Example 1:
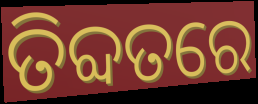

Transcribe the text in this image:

ତିବ୍ଦତରେ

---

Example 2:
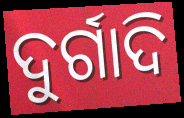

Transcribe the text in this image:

ଦୁର୍ଗାଦି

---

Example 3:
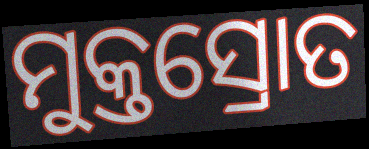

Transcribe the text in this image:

ମୁକ୍ତସ୍ରୋତ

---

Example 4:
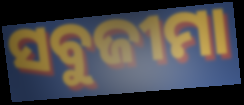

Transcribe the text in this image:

ସବୁଜୀମା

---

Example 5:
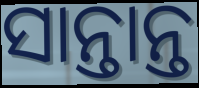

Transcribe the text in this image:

ସାନ୍ତାନ୍ତ